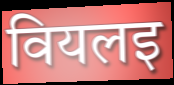
वियलइ